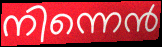
നിന്നെൻ